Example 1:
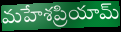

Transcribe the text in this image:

మహేశప్రియామ్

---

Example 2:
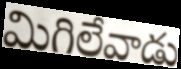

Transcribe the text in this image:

మిగిలేవాడు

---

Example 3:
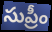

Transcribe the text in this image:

సుప్రీం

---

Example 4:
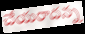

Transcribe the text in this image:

చేయరాదన్న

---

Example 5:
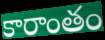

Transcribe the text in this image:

కారాంతం